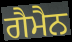
ਗੈਮੈਨ